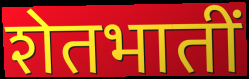
शेतभातीं